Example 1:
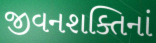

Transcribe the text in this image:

જીવનશક્તિનાં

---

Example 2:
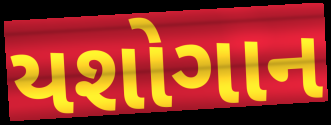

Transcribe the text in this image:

યશોગાન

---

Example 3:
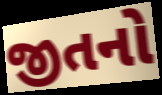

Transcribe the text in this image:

જીતનો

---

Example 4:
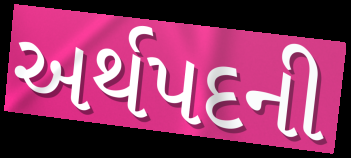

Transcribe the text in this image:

અર્થપદની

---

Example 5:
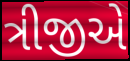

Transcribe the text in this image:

ત્રીજીએ